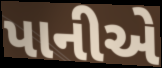
પાનીએ